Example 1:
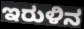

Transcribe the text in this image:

ಇರುಳಿನ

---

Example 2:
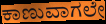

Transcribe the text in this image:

ಕಾಣುವಾಗಲೇ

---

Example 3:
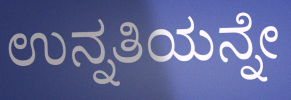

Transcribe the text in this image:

ಉನ್ನತಿಯನ್ನೇ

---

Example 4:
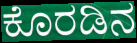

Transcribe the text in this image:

ಕೊರಡಿನ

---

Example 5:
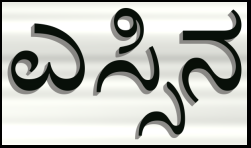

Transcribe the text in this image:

ಎಸ್ಸಿನ